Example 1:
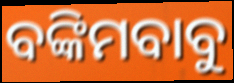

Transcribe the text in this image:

ବଙ୍କିମବାବୁ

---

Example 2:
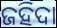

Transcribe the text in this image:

ଜହିଦା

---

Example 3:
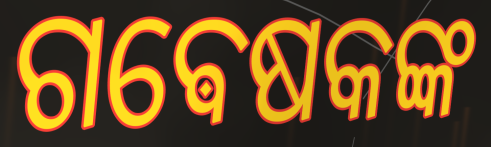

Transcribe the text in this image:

ଗଵେଷକଙ୍କ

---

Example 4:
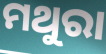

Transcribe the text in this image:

ମଥୁରା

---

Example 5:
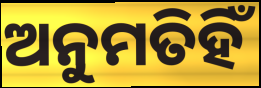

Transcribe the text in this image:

ଅନୁମତିହିଁ